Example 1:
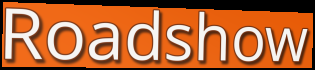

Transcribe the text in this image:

Roadshow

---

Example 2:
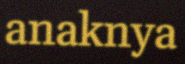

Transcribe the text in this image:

anaknya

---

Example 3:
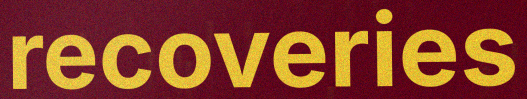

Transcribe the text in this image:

recoveries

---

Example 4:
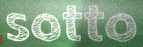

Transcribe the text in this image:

sotto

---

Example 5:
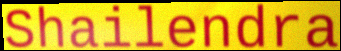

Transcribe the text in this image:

Shailendra